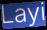
Layi